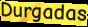
Durgadas